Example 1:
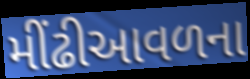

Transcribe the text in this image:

મીંઢીઆવળના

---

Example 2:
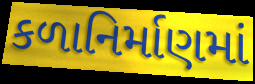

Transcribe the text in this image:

કળાનિર્માણમાં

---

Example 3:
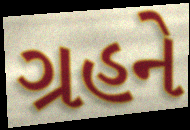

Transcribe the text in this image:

ગ્રહને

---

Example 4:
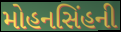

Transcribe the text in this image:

મોહનસિંહની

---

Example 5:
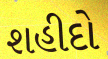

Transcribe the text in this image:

શહીદો